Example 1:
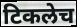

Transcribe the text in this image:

टिकलेच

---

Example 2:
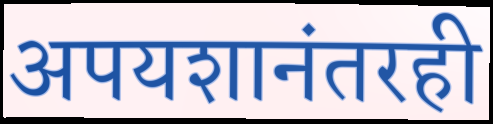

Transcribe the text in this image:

अपयशानंतरही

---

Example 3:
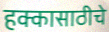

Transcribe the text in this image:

हक्कासाठीचे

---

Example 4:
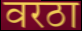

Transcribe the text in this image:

वरठा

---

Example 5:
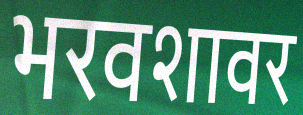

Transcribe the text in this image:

भरवशावर